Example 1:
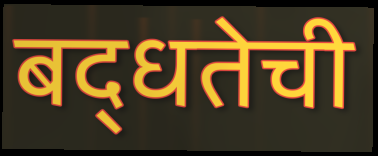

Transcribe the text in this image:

बद्धतेची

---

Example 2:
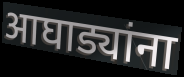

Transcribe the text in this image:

आघाड्यांना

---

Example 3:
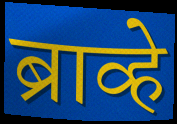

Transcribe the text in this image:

ब्राव्हे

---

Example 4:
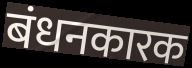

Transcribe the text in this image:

बंधनकारक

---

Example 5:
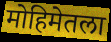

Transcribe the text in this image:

मोहिमेतला